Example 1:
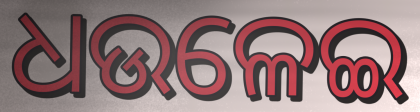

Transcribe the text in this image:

ଧଉଳେଇ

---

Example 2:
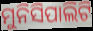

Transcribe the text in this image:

ମୁନିସିପାଲିଟି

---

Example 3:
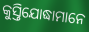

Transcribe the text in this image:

କୁସ୍ତିଯୋଦ୍ଧାମାନେ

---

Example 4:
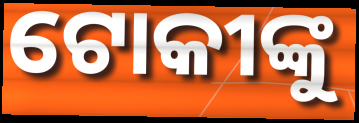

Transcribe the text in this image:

ଟୋକୀଙ୍କୁ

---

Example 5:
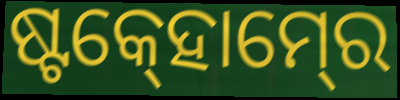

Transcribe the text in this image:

ଷ୍ଟକ୍‍ହୋମ୍‍ରେ